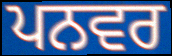
ਪਨਵਰ